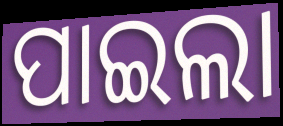
ପାଇଲା